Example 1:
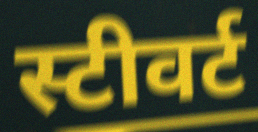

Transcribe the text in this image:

स्टीवर्ट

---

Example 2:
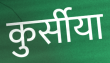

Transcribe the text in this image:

कुर्सीया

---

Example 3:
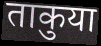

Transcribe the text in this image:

ताकुया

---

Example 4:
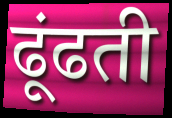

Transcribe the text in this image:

ढूंढती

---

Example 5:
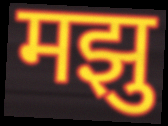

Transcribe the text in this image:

मझु